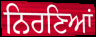
ਨਿਰਣਿਆਂ